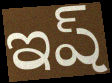
ఇష్